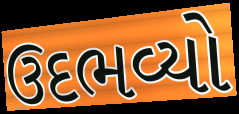
ઉદભવ્યો